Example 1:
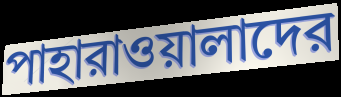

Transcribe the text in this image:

পাহারাওয়ালাদের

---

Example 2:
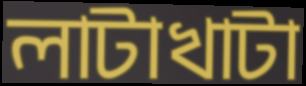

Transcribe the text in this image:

লাটাখাটা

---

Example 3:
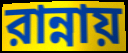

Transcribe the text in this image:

রান্নায়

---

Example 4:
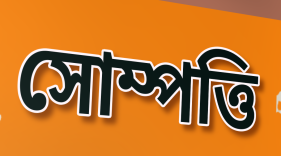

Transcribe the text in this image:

সোম্পত্তি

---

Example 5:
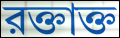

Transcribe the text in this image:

রক্তাক্ত